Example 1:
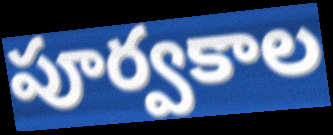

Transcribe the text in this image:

పూర్వకాల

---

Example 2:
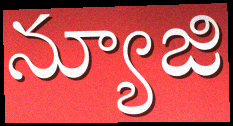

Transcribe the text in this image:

న్యూజి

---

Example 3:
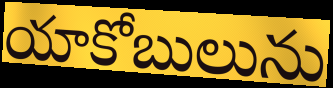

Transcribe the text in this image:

యాకోబులును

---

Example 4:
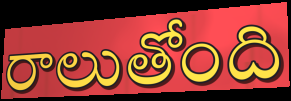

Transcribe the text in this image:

రాలుతోంది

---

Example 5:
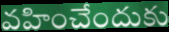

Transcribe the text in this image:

వహించేందుకు